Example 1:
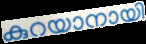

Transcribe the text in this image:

കുറയാനായി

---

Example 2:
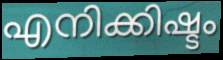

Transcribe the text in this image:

എനിക്കിഷ്ടം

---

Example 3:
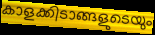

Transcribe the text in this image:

കാളക്കിടാങ്ങളുടെയും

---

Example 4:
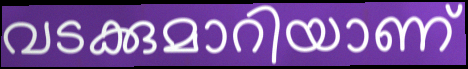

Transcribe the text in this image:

വടക്കുമാറിയാണ്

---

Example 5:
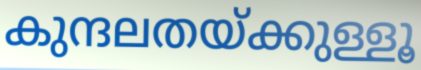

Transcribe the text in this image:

കുന്ദലതയ്ക്കുള്ളൂ